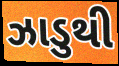
ઝાડુથી